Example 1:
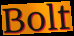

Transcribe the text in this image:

Bolt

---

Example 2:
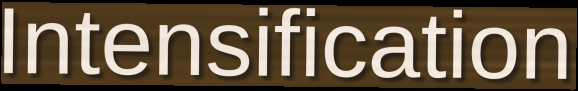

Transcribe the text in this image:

Intensification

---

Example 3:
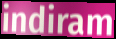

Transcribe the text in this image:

indiram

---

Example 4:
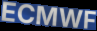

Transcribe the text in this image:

ECMWF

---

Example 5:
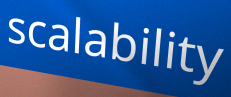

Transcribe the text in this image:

scalability